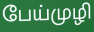
பேய்முழி